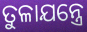
ତୁଳାଯନ୍ତ୍ରେ